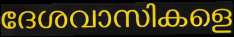
ദേശവാസികളെ